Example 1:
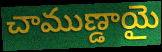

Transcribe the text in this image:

చాముణ్డాయై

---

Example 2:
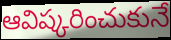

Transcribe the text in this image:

ఆవిష్కరించుకునే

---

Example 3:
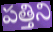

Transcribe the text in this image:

పత్తిని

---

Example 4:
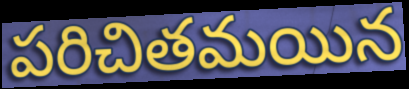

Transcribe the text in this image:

పరిచితమయిన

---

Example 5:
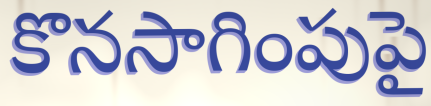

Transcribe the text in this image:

కొనసాగింపుపై